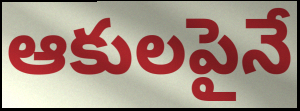
ఆకులపైనే